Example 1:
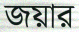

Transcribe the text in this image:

জয়ার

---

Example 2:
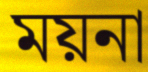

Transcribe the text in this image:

ময়না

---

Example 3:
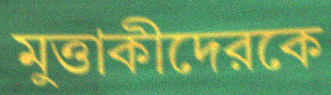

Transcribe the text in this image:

মুত্তাকীদেরকে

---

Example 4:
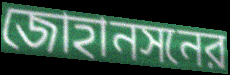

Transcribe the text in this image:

জোহানসনের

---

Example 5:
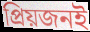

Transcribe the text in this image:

প্রিয়জনই